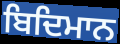
ਬਿਦਿਮਾਨ